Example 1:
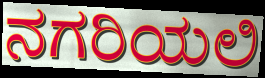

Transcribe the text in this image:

ನಗರಿಯಲಿ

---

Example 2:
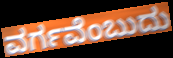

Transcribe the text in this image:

ವರ್ಗವೆಂಬುದು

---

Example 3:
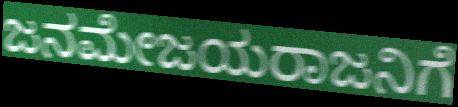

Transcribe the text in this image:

ಜನಮೇಜಯರಾಜನಿಗೆ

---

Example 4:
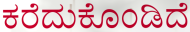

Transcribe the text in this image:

ಕರೆದುಕೊಂಡಿದೆ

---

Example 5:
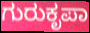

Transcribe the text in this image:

ಗುರುಕೃಪಾ